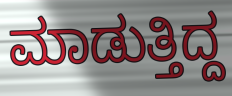
ಮಾಡುತ್ತಿದ್ದ